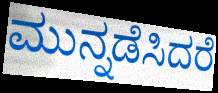
ಮುನ್ನಡೆಸಿದರೆ